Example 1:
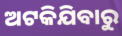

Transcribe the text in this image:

ଅଟକିଯିବାରୁ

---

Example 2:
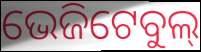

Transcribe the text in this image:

ଭେଜିଟେବୁଲ୍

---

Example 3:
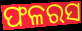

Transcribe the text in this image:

ଫଳରସ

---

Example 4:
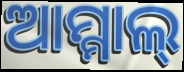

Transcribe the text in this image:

ଆମ୍ମାଲ୍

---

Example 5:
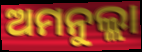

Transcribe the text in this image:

ଅମନୁଲ୍ଲା